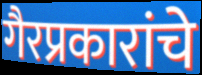
गैरप्रकारांचे